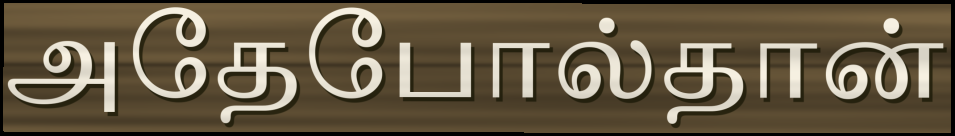
அதேபோல்தான்